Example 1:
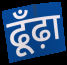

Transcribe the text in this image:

ढूँढ़ा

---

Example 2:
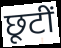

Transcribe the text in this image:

छूटीं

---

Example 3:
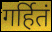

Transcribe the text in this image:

गर्हितं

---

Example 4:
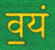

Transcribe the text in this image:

व॒यं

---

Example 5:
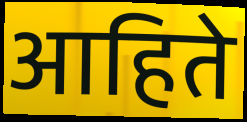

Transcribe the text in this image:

आहिते